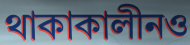
থাকাকালীনও